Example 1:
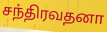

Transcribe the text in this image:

சந்திரவதனா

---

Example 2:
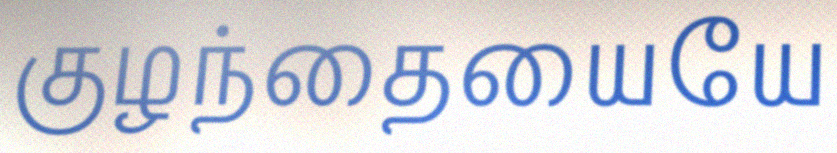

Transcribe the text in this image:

குழந்தையையே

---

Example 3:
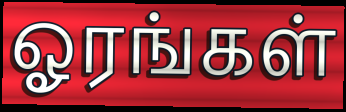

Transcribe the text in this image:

ஓரங்கள்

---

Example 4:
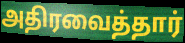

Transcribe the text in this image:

அதிரவைத்தார்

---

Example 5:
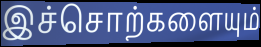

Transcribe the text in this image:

இச்சொற்களையும்